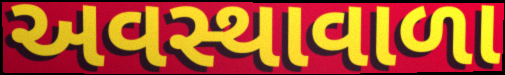
અવસ્થાવાળા